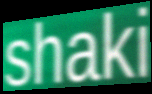
shaki